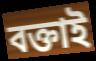
বক্তাই